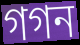
গগন